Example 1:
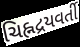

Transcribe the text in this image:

ચિહ્નદ્રયવર્તી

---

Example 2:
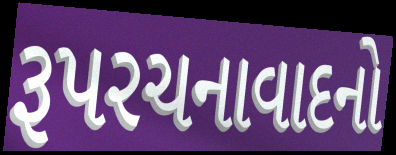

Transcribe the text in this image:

રૂપરચનાવાદનો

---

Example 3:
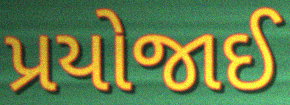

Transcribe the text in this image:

પ્રયોજાઈ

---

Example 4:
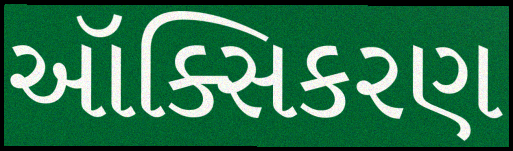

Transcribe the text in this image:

ઑક્સિકરણ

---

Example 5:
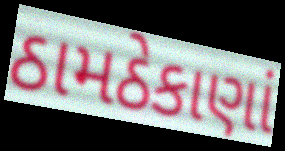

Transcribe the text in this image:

ઠામઠેકાણાં